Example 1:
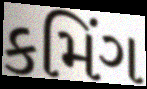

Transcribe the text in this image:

કમિંગ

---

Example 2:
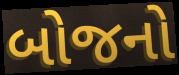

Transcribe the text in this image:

બોજનો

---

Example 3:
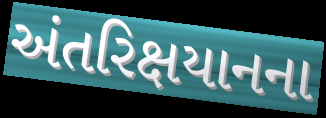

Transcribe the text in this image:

અંતરિક્ષયાનના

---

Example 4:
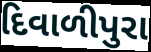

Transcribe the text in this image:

દિવાળીપુરા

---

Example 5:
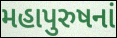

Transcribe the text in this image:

મહાપુરુષનાં